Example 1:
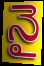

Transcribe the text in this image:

నై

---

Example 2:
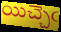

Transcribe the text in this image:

యిచ్చెఁ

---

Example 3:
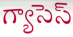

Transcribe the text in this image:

గ్యాసెస్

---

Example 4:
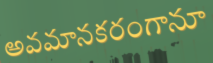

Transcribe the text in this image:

అవమానకరంగానూ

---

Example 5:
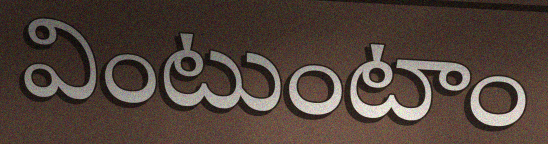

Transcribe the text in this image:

వింటుంటాం